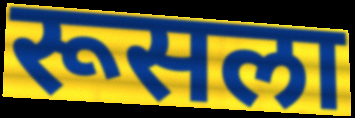
रूसला